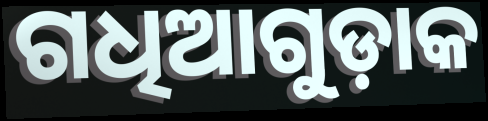
ଗଧିଆଗୁଡ଼ାକ